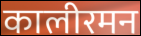
कालीरमन